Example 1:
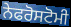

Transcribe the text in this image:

ਨੇਫਰੋਸਟੋਮੀ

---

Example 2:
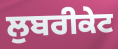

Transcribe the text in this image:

ਲੁਬਰੀਕੇਟ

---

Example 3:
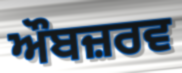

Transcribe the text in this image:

ਔਬਜ਼ਰਵ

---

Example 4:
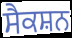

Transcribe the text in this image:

ਸੈਕਸ਼ਨ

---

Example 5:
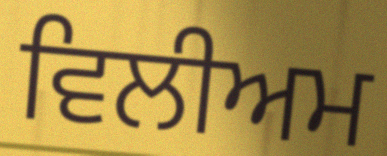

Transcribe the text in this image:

ਵਿਲੀਅਮ